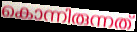
കൊന്നിരുന്നത്